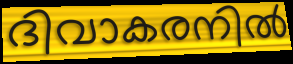
ദിവാകരനിൽ